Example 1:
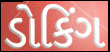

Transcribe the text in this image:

ડોકિંગ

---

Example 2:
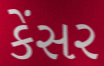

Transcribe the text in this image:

કેંસર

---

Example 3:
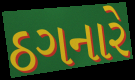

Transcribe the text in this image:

ઠગનારે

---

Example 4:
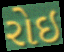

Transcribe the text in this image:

રોઇ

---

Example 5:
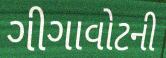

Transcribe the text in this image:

ગીગાવોટની